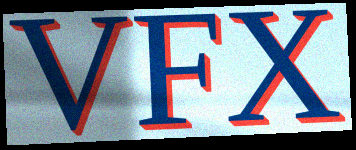
VFX